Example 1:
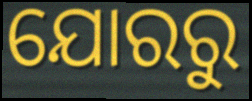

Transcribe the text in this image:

ଯୋରରୁ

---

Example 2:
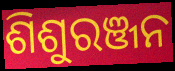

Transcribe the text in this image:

ଶିଶୁରଞ୍ଜନ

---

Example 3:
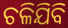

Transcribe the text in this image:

ଚଳିଯିବି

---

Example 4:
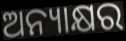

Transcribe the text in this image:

ଅନ୍ୟାକ୍ଷର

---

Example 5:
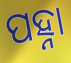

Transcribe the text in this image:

ପହ୍ନା